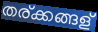
തര്ക്കങ്ങള്